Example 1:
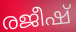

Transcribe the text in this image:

രജീഷ്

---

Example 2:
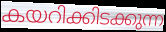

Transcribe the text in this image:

കയറിക്കിടക്കുന്ന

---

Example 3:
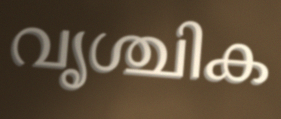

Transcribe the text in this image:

വൃശ്ചിക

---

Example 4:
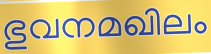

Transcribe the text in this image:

ഭുവനമഖിലം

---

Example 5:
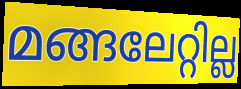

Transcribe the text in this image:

മങ്ങലേറ്റില്ല